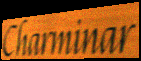
Charminar